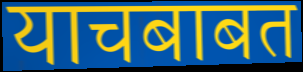
याचबाबत